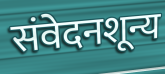
संवेदनशून्य